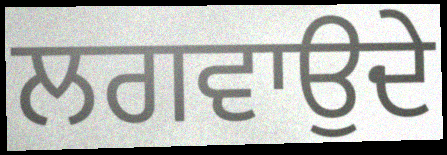
ਲਗਵਾਉਦੇ